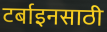
टर्बाइनसाठी